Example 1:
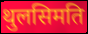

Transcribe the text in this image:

थुलसिमति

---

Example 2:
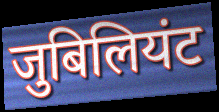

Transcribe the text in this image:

जुबिलियंट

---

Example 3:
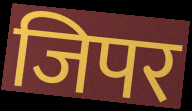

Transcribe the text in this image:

जिपर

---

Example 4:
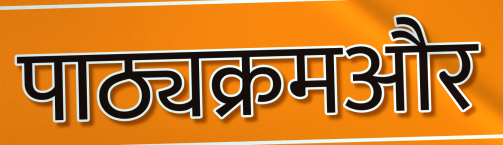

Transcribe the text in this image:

पाठ्यक्रमऔर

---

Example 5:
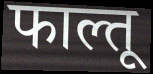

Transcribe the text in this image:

फाल्तू